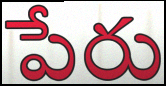
పేరు